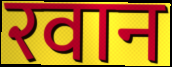
रवान